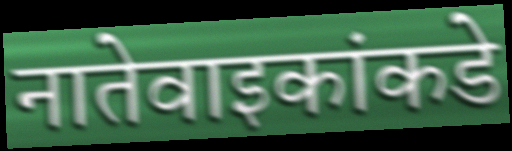
नातेवाइकांकडे